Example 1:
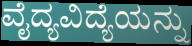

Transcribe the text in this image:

ವೈದ್ಯವಿದ್ಯೆಯನ್ನು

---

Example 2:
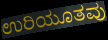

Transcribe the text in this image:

ಉರಿಯೂತವು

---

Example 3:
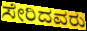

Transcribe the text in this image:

ಸೇರಿದವರು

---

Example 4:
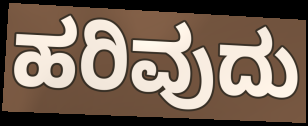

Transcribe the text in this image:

ಹರಿವುದು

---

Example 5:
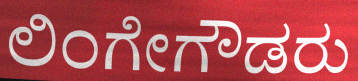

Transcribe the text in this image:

ಲಿಂಗೇಗೌಡರು